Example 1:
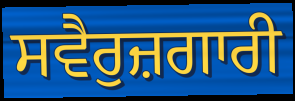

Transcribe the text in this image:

ਸਵੈਰੁਜ਼ਗਾਰੀ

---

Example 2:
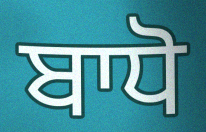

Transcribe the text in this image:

ਬਾਧੋ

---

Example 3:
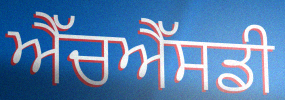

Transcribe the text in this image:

ਐੱਚਐੱਸਡੀ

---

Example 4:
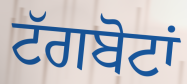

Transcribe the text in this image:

ਟੱਗਬੋਟਾਂ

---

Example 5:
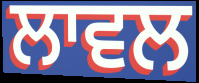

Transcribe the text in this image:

ਲਾਵਲ